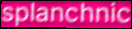
splanchnic